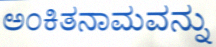
ಅಂಕಿತನಾಮವನ್ನು